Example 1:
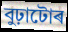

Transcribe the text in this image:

বুঢ়াটোৰ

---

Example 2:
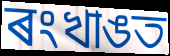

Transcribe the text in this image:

ৰংখাঙত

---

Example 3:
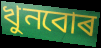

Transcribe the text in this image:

খুনবোৰ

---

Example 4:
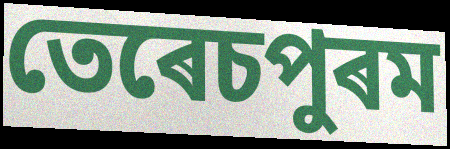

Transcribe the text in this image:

তেৰেচপুৰম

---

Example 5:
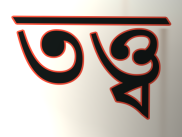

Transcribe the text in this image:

তত্ত্ব